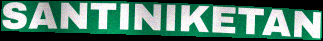
SANTINIKETAN